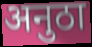
अनुठा